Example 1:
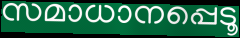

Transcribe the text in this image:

സമാധാനപ്പെടൂ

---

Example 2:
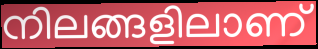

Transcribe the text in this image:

നിലങ്ങളിലാണ്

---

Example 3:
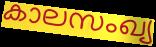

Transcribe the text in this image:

കാലസംഖ്യ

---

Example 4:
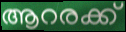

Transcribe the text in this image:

ആറരക്ക്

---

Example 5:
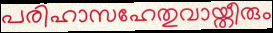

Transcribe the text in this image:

പരിഹാസഹേതുവായ്തീരും